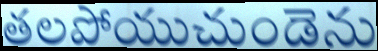
తలపోయుచుండెను